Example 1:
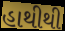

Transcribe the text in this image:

હાથીથી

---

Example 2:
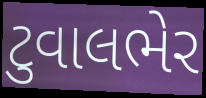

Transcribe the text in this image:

ટુવાલભેર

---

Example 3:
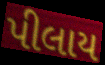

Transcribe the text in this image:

પીલાય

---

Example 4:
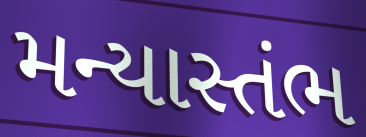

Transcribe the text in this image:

મન્યાસ્તંભ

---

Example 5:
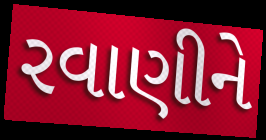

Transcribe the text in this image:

રવાણીને